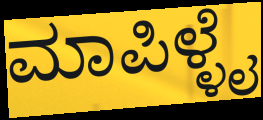
ಮಾಪಿಳ್ಳೈ